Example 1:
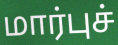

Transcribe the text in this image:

மார்புச்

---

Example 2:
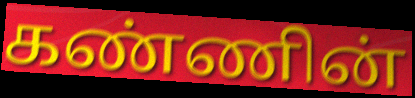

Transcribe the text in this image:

கண்ணின்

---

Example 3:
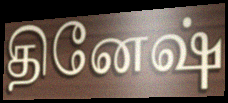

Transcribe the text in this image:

தினேஷ்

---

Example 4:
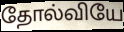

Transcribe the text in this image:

தோல்வியே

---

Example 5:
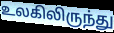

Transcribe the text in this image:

உலகிலிருந்து